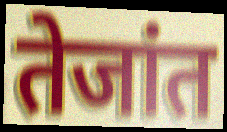
तेजांत